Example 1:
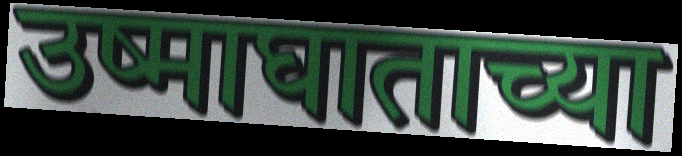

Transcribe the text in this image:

उष्माघाताच्या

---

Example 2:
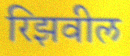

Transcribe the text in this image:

रिझवील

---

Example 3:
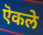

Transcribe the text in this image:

ऎकले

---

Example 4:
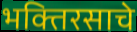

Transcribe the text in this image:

भक्तिरसाचे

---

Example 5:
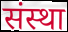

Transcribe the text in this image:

संस्था